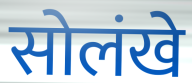
सोलंखे